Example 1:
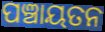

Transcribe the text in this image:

ପଞ୍ଚାୟତନ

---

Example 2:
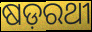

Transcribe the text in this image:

ଷଡ଼ରଥୀ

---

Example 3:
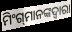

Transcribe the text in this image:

ମିଂଗ୍‍ମାନଙ୍କଦ୍ୱାରା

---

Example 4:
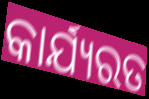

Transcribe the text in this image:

କାର୍ଯ୍ୟରତ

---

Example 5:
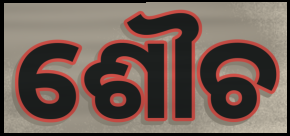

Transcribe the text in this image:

ଶୌଚ